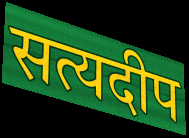
सत्यदीप